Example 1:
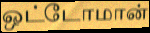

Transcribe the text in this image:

ஒட்டோமான்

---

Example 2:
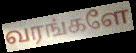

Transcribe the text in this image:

வரங்களே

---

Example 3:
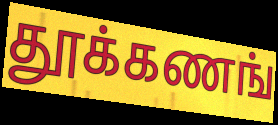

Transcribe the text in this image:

தூக்கணங்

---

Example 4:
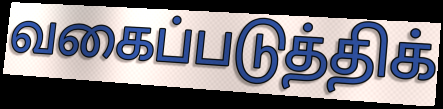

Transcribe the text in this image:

வகைப்படுத்திக்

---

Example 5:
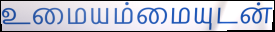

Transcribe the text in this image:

உமையம்மையுடன்